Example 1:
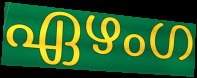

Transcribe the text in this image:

ഏഴംഗ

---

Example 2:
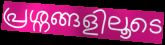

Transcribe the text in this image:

പ്രശ്നങ്ങളിലൂടെ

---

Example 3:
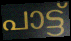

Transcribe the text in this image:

പാട്ട്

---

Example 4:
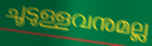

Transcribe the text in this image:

ചൂടുള്ളവനുമല്ല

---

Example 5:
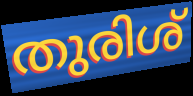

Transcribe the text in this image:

തുരിശ്